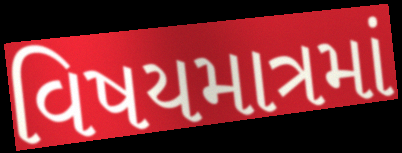
વિષયમાત્રમાં